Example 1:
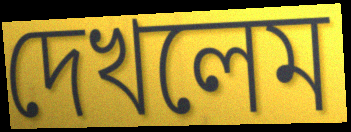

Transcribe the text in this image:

দেখলেম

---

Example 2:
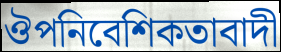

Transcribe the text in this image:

ঔপনিবেশিকতাবাদী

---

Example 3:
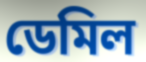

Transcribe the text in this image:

ডেমিল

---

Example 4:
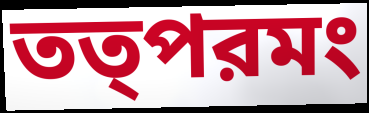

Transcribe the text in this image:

তত্পরমং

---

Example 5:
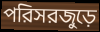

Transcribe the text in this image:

পরিসরজুড়ে